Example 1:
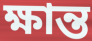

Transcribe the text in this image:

ক্ষান্ত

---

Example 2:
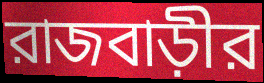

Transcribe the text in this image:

রাজবাড়ীর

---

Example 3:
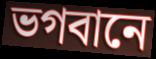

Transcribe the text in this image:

ভগবানে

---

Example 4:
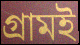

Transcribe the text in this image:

গ্রামই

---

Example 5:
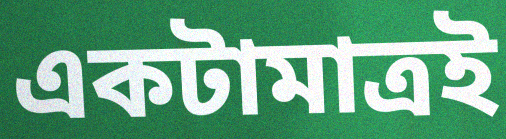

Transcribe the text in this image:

একটামাত্রই